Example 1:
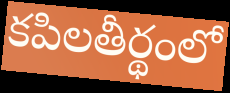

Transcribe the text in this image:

కపిలతీర్థంలో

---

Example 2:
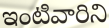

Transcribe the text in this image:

ఇంటివారిని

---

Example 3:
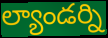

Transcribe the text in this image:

ల్యాండర్ని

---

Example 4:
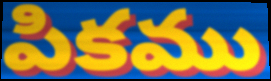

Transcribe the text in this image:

పికము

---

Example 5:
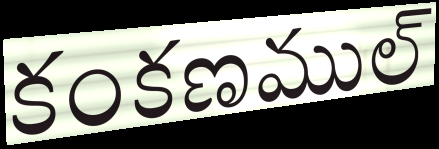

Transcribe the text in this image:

కంకణముల్